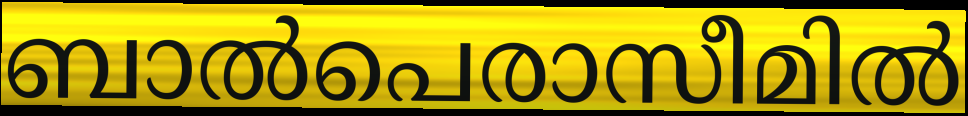
ബാൽപെരാസീമിൽ